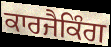
ਕਾਰਜੈਕਿੰਗ